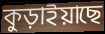
কুড়াইয়াছে